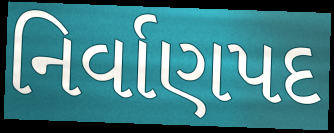
નિર્વાણપદ